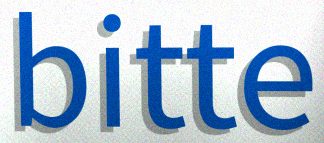
bitte